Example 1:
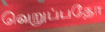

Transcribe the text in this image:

வெறுப்பதோ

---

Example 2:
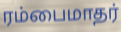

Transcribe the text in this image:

ரம்பைமாதர்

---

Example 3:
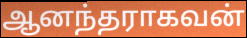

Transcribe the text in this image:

ஆனந்தராகவன்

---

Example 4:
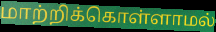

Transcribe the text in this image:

மாற்றிக்கொள்ளாமல்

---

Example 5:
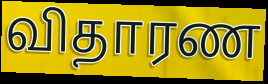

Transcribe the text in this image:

விதாரண